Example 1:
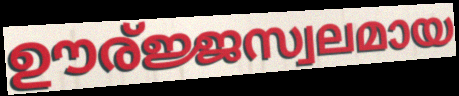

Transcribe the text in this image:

ഊര്ജ്ജസ്വലമായ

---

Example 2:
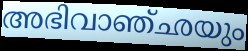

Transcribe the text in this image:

അഭിവാഞ്ഛയും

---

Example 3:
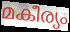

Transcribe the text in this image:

മകീര്യം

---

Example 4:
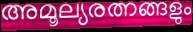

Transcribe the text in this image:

അമൂല്യരത്നങ്ങളും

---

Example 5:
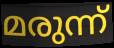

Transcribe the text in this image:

മരുന്ന്